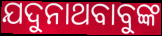
ଯଦୁନାଥବାବୁଙ୍କ